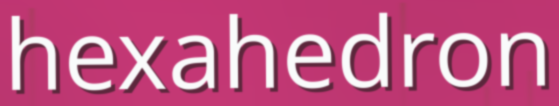
hexahedron